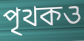
পৃথকও